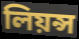
লিয়ন্স